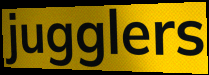
jugglers